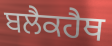
ਬਲੈਕਹੈਥ